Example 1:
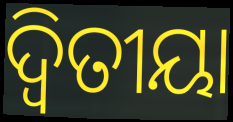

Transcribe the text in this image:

ଦ୍ବିତୀୟା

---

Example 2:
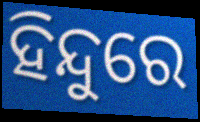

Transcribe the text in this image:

ହିନ୍ଦୁରେ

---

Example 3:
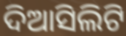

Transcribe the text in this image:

ଦିଆସିଲିଟି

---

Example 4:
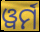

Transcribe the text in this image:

ୱର୍ମ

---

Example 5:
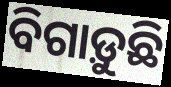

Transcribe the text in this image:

ବିଗାଡ଼ୁଛି